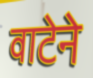
वाटेने